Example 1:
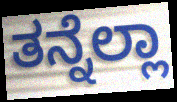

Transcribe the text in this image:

ತನ್ನೆಲ್ಲಾ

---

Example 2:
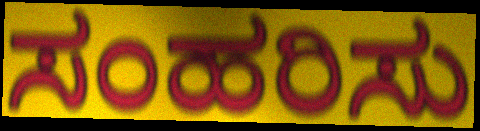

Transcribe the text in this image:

ಸಂಹರಿಸು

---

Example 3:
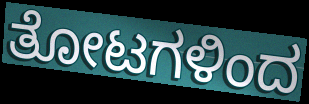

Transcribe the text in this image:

ತೋಟಗಳಿಂದ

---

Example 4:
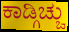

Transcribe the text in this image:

ಕಾಡ್ಗಿಚ್ಚು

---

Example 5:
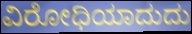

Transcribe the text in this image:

ವಿರೋಧಿಯಾದುದು